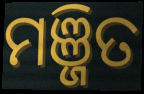
ମଞ୍ଜିତ